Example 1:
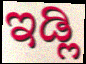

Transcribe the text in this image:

ಇಡ್ಲಿ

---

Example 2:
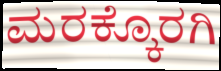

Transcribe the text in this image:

ಮರಕ್ಕೊರಗಿ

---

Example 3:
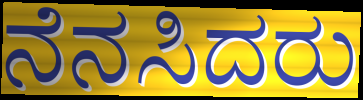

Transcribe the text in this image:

ನೆನಸಿದರು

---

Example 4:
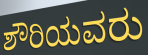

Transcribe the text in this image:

ಶೌರಿಯವರು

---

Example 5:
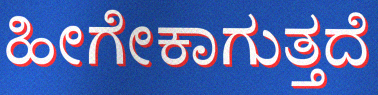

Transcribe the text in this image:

ಹೀಗೇಕಾಗುತ್ತದೆ